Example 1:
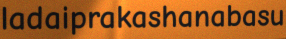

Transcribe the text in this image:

ladaiprakashanabasu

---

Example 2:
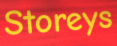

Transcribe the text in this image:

Storeys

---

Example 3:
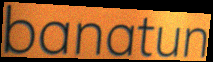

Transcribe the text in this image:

banatun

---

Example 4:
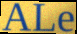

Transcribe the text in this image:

ALe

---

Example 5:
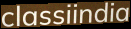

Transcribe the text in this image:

classiindia